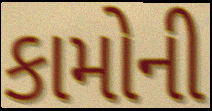
કામોની